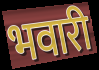
भवारी